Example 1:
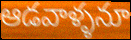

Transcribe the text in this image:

ఆడవాళ్ళనూ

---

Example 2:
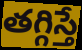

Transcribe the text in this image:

తగ్గిస్తే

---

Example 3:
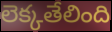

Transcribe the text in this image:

లెక్కతేలింది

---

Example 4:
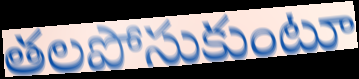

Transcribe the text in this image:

తలపోసుకుంటూ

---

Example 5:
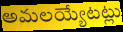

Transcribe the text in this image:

అమలయ్యేటట్లు